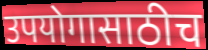
उपयोगासाठीच